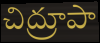
చిద్రూపా